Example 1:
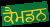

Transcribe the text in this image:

ਕੈਮਡਨ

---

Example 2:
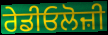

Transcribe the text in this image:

ਰੇਡੀਓਲੋਜ਼ੀ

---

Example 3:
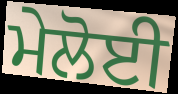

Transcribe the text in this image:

ਮੇਲੋਈ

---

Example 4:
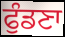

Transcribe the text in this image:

ਫੁੰਡਣਾ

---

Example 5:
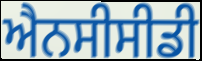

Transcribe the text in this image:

ਐਨਸੀਸੀਡੀ